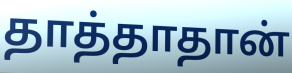
தாத்தாதான்